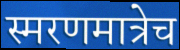
स्मरणमात्रेच